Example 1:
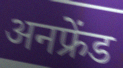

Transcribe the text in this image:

अनफ्रेंड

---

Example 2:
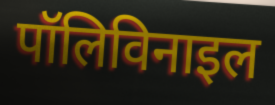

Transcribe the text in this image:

पॉलिविनाइल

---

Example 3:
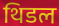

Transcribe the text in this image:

थिडल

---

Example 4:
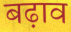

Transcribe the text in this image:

बढ़ाव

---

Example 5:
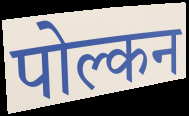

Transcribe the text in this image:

पोल्कन